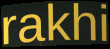
rakhi